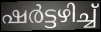
ഷർട്ടഴിച്ച്